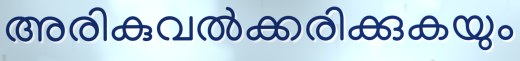
അരികുവൽക്കരിക്കുകയും